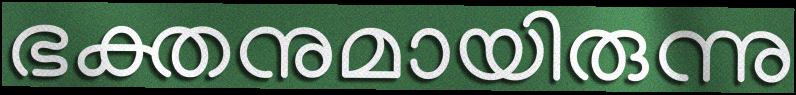
ഭക്തനുമായിരുന്നു